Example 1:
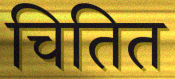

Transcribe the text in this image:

चितित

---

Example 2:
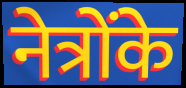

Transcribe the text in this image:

नेत्रोंके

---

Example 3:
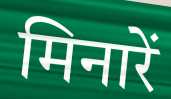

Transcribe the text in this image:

मिनारें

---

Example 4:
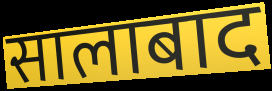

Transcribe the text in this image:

सालाबाद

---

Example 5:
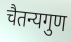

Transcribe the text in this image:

चैतन्यगुण